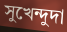
সুখেন্দুদা